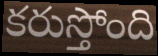
కరుస్తోంది